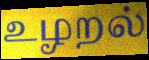
உழறல்